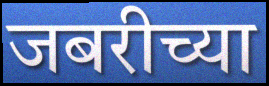
जबरीच्या